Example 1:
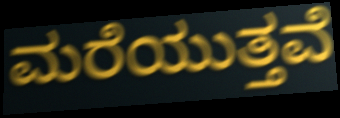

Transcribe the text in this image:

ಮರೆಯುತ್ತವೆ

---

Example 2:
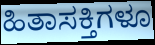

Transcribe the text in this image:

ಹಿತಾಸಕ್ತಿಗಳೂ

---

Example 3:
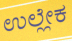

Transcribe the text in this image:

ಉಲ್ಲೇಕ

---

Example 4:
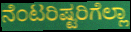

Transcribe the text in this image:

ನೆಂಟರಿಷ್ಟರಿಗೆಲ್ಲಾ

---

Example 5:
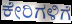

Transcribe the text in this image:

ಕೇರಿಗಳಿಗೆ